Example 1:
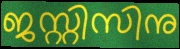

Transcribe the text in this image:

ജസ്റ്റിസിനു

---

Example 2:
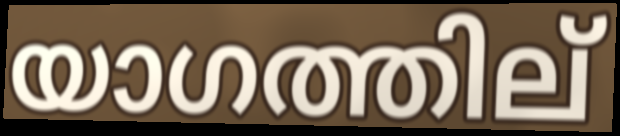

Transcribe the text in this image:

യാഗത്തില്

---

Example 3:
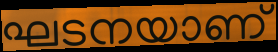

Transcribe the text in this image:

ഘടനയാണ്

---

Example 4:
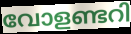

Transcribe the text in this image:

വോളണ്ടറി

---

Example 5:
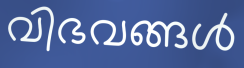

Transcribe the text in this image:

വിഭവങ്ങൾ